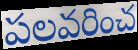
పలవరించ